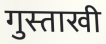
गुस्ताखी